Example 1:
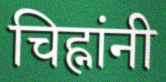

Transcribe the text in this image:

चिह्नांनी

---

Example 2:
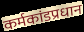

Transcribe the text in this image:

कर्मकांडप्रधान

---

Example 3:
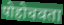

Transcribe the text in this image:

पोहोचवता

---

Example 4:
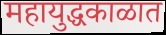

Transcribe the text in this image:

महायुद्धकाळात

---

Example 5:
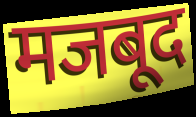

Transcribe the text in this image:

मजबूद